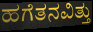
ಹಗೆತನವಿತ್ತು